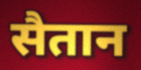
सैतान